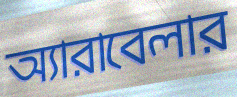
অ্যারাবেলার